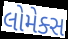
લોમેક્સ